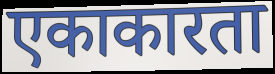
एकाकारता